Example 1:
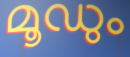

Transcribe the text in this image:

മൂഡും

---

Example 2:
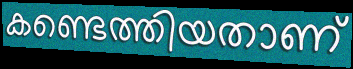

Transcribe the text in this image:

കണ്ടെത്തിയതാണ്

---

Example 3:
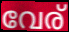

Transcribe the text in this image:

വേര്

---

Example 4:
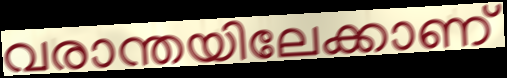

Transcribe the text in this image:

വരാന്തയിലേക്കാണ്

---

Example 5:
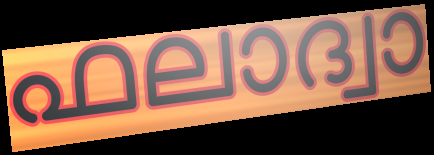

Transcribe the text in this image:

ഫലാദ്വാ